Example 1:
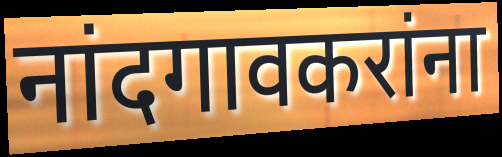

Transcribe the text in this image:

नांदगावकरांना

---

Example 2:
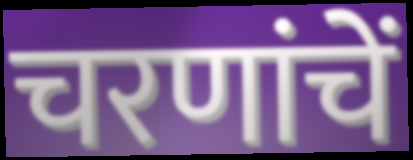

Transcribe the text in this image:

चरणांचें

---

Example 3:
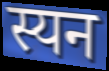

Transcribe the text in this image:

स्यन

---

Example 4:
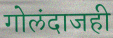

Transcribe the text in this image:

गोलंदाजही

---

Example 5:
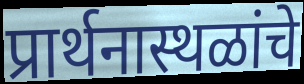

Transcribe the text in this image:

प्रार्थनास्थळांचे